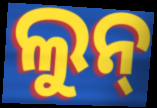
ଲୁନ୍